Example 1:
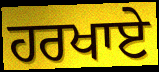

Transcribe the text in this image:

ਹਰਖਾਏ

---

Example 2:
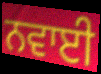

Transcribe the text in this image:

ਨਵਾਈ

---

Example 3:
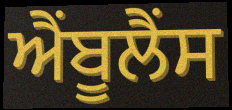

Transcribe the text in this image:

ਐੰਬੂਲੈਂਸ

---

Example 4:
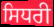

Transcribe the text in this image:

ਸਿਧਰੀ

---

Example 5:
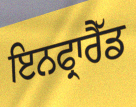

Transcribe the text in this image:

ਇਨਫ੍ਰਾਰੈੱਡ